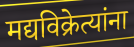
मद्यविक्रेत्यांना